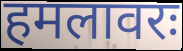
हमलावरः